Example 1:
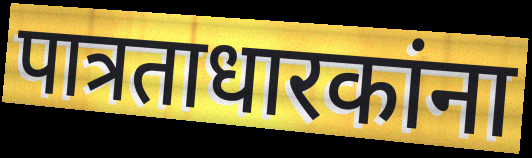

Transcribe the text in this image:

पात्रताधारकांना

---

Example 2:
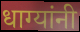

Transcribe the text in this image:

धाग्यांनी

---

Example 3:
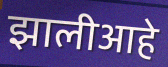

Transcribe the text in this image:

झालीआहे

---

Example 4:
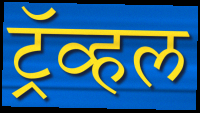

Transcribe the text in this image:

ट्रॅव्हल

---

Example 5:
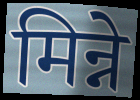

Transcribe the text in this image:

मिन्ने